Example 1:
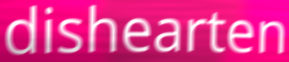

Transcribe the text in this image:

dishearten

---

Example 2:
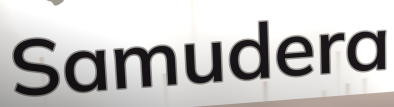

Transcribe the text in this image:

Samudera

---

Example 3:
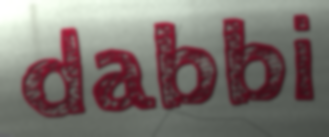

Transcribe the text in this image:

dabbi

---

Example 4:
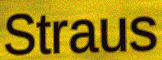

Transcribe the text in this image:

Straus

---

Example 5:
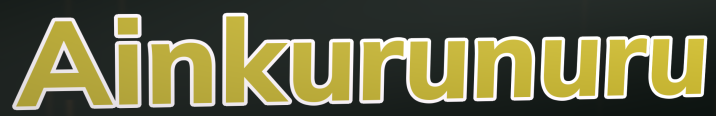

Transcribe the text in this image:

Ainkurunuru